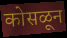
कोसळून